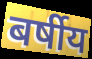
बर्षीय